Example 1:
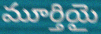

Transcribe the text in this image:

మూర్తియై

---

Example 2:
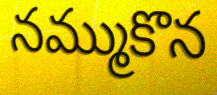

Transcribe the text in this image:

నమ్ముకొన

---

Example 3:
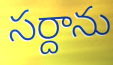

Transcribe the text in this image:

సర్దాను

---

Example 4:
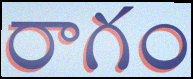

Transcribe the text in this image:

రాగం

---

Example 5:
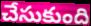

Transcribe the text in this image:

చేసుకుంది